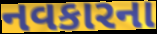
નવકારના